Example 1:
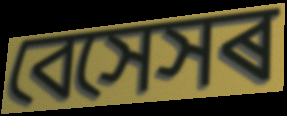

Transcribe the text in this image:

বেসেসৰ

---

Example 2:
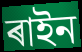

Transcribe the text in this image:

ৰাইন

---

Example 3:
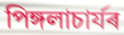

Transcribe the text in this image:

পিঙ্গলাচাৰ্যৰ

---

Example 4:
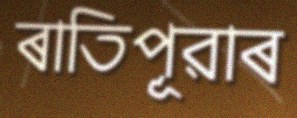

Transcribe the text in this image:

ৰাতিপূৱাৰ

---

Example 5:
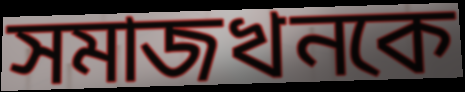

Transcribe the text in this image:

সমাজখনকে